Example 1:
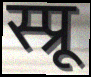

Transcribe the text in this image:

स्प्रू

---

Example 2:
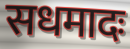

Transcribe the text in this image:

सधमादः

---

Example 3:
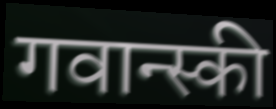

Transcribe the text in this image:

गवान्स्की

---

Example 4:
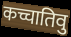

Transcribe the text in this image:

कच्चातिवु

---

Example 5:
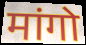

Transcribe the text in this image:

मांगो